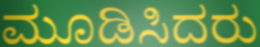
ಮೂಡಿಸಿದರು